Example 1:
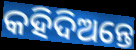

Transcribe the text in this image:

କହିଦିଅନ୍ତେ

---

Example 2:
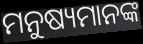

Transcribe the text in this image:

ମନୁଷ୍ୟମାନଙ୍କ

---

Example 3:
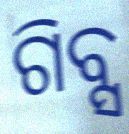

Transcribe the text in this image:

ଗିବ୍ସ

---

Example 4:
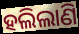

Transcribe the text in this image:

ହଲିଲାଣି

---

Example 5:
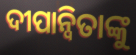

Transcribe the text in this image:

ଦୀପାନ୍ୱିତାଙ୍କୁ